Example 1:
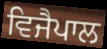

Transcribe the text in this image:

ਵਿਜੈਪਾਲ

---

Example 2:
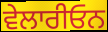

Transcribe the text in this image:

ਵੇਲਾਰੀਓਨ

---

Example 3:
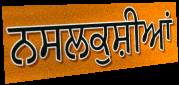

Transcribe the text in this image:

ਨਸਲਕੁਸ਼ੀਆਂ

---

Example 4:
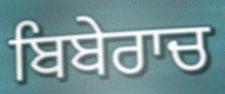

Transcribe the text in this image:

ਬਿਬੇਰਾਚ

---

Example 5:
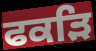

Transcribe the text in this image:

ਫਕੜਿ